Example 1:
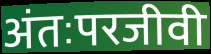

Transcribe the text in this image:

अंतःपरजीवी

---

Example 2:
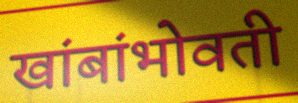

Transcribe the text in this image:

खांबांभोवती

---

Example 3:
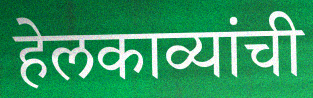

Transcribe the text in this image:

हेलकाव्यांची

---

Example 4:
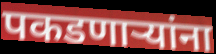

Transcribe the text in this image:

पकडणाऱ्यांना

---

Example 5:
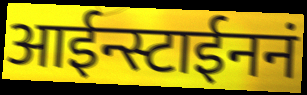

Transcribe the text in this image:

आईन्स्टाईननं